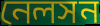
নেলসন